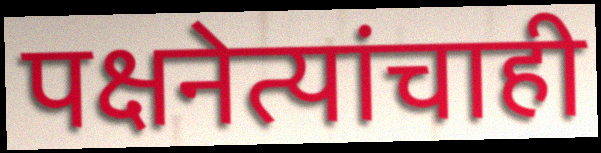
पक्षनेत्यांचाही